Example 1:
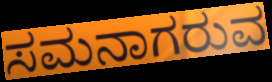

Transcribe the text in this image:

ಸಮನಾಗರುವ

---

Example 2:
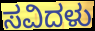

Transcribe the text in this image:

ಸವಿದಳು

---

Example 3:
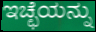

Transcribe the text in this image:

ಇಚ್ಛೆಯನ್ನು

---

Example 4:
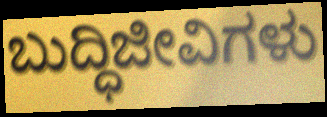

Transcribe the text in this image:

ಬುದ್ಧಿಜೀವಿಗಳು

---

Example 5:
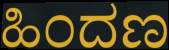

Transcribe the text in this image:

ಹಿಂದಣ